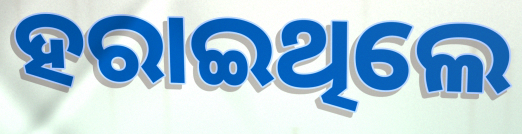
ହରାଇଥିଲେ